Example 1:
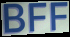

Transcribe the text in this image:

BFF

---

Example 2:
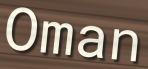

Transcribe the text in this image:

Oman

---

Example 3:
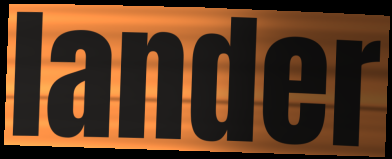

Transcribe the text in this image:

lander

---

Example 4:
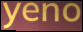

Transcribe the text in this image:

yeno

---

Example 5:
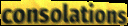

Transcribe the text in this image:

consolations